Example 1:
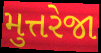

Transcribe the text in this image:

મુત્તરેજા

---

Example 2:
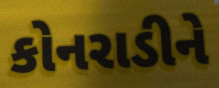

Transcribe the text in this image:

કોનરાડીને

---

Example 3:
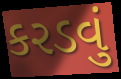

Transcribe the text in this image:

કરડવું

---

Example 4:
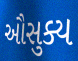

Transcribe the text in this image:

ઔસુક્ય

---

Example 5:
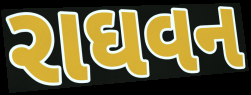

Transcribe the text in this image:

રાઘવન